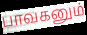
பாவகனும்